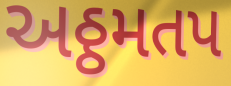
અઠ્ઠમતપ